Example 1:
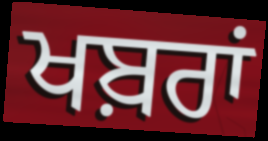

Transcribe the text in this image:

ਖਬ਼ਰਾਂ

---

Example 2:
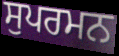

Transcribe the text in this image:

ਸੁਪਰਮਨ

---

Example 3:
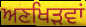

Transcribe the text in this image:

ਅਣਖਿੜਵਾਂ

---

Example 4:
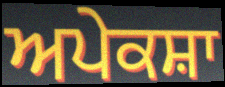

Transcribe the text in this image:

ਅਪੇਕਸ਼ਾ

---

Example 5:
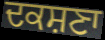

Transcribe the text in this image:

ਦਕਸ਼ਣਾ